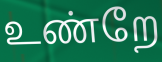
உண்றே